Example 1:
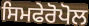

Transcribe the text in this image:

ਸਿਮਫੇਰੋਪੋਲ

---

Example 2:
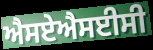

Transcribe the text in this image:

ਐਸਏਐਸਈਸੀ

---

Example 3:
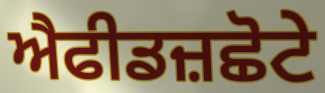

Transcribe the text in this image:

ਐਫੀਡਜ਼ਛੋਟੇ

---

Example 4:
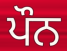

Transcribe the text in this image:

ਪੌਨ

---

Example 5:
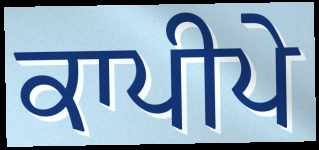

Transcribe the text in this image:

ਕਾਪੀਪੇ